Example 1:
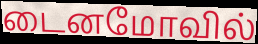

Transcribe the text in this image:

டைனமோவில்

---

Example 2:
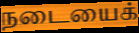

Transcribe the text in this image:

நடையைக்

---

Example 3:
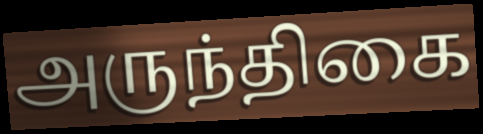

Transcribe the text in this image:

அருந்திகை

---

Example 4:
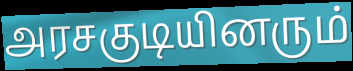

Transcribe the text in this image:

அரசகுடியினரும்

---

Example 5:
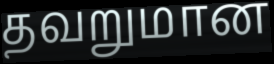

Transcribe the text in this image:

தவறுமான